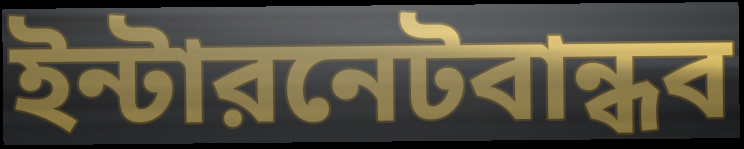
ইন্টারনেটবান্ধব